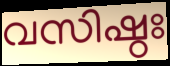
വസിഷ്ഠഃ